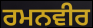
ਰਮਨਵੀਰ